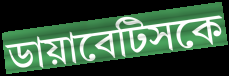
ডায়াবেটিসকে